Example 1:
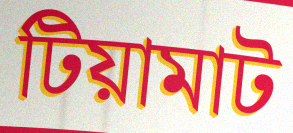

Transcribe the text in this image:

টিয়ামাট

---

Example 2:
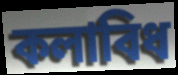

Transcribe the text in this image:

কলাবিধ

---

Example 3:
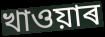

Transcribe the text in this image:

খাওয়াৰ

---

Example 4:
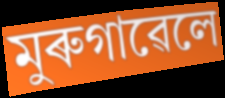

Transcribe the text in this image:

মুৰুগাৱেলে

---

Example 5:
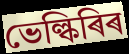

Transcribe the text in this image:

ভেল্কিৰিৰ